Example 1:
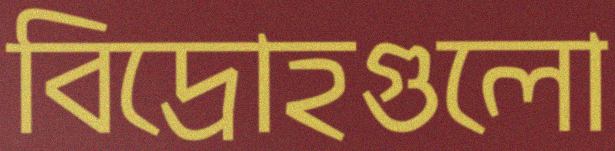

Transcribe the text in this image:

বিদ্রোহগুলো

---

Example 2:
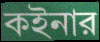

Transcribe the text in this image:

কইনার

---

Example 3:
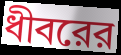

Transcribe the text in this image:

ধীবরের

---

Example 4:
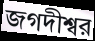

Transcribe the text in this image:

জগদীশ্বর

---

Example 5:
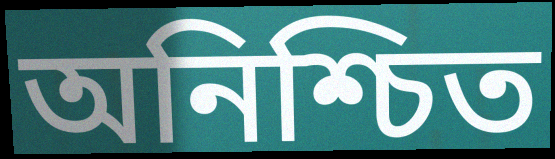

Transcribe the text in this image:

অনিশ্চিত